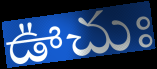
ఊచుః